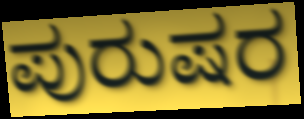
ಪುರುಷರ